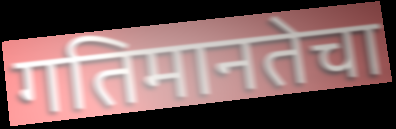
गतिमानतेचा